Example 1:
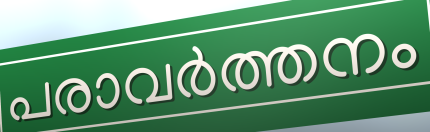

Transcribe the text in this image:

പരാവർത്തനം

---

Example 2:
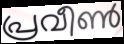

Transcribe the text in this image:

പ്രവീൺ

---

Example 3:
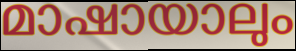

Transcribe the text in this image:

മാഷായാലും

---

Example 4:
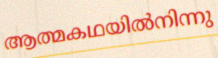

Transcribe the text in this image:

ആത്മകഥയിൽനിന്നു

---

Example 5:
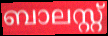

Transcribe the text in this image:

ബാലസ്റ്റ്